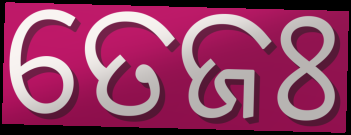
ତେଜଃ